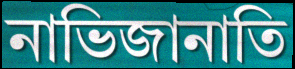
নাভিজানাতি